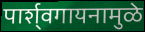
पार्श्वगायनामुळे